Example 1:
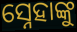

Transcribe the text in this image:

ସ୍ନେହାଙ୍କୁ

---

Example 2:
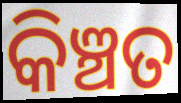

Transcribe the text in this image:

କିଞ୍ଚତ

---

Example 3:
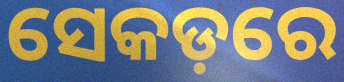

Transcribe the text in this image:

ସେକଡ଼ରେ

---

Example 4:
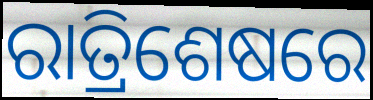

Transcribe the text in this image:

ରାତ୍ରିଶେଷରେ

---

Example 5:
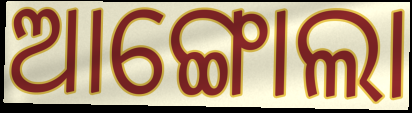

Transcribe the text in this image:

ଆଙ୍ଗୋଲା